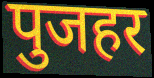
पुजहर